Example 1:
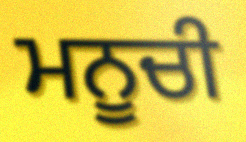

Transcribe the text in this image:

ਮਨੂਚੀ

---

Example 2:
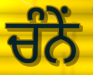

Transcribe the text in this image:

ਚੰਨੇਂ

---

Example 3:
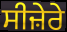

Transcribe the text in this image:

ਸੀਜ਼ੇਰੇ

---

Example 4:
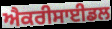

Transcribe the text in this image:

ਐਕਰੀਸਾਈਡਲ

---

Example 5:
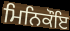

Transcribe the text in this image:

ਮਿਨਿਕੌਇ